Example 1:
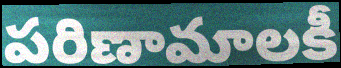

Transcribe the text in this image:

పరిణామాలకీ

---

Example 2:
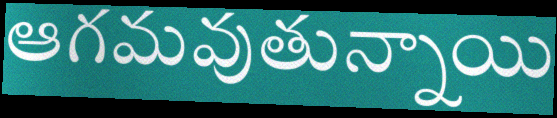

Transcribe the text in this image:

ఆగమవుతున్నాయి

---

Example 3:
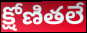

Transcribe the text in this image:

క్షోణితలే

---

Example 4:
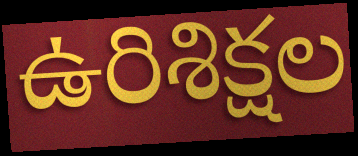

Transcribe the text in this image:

ఉరిశిక్షల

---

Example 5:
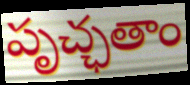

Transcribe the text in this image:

పృచ్ఛతాం